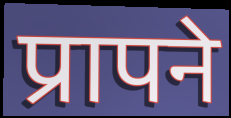
प्रापने